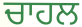
ਚਾਹਲ